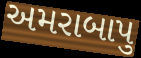
અમરાબાપુ